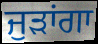
ਜੁੜਾਂਗਾ